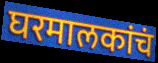
घरमालकांचं